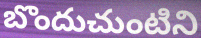
బొందుచుంటిని